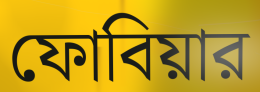
ফোবিয়ার